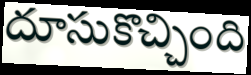
దూసుకొచ్చింది